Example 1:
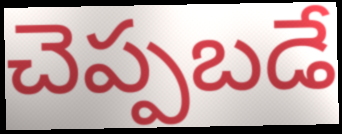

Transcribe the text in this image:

చెప్పబడే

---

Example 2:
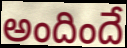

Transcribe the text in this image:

అందిందే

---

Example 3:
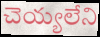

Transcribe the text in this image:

చెయ్యలేని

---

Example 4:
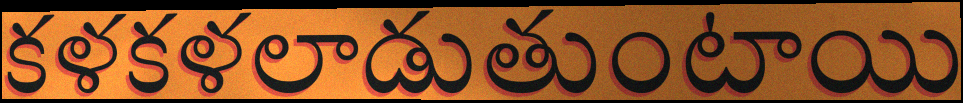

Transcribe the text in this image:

కళకళలాడుతుంటాయి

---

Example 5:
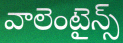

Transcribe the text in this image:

వాలెంటైన్స్